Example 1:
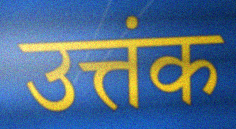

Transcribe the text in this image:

उत्तंक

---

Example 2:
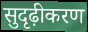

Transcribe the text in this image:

सुदृढ़ीकरण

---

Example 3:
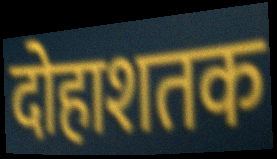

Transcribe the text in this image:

दोहाशतक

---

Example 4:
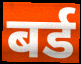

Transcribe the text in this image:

बर्ड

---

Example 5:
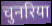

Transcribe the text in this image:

चुनरिया